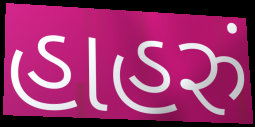
હાહરું